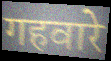
गहवारे